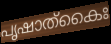
പൃഷാത്കൈഃ